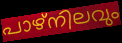
പാഴ്നിലവും